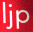
ljp